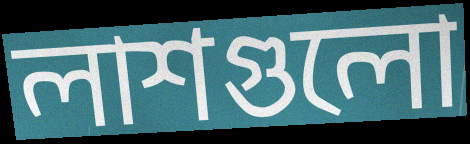
লাশগুলো